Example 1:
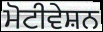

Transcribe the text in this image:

ਮੋਟੀਵੇਸ਼ਨ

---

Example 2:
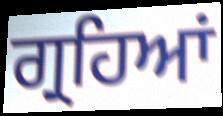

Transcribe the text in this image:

ਗ੍ਰਹਿਆਂ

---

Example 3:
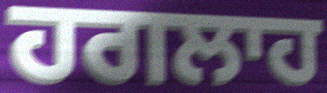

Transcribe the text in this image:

ਹਗਲਾਹ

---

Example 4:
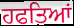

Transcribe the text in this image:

ਹਫਤਿਆਂ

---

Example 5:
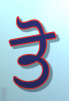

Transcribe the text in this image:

ਤੋ